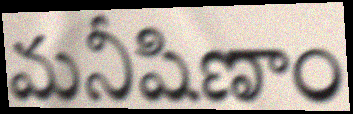
మనీషిణాం